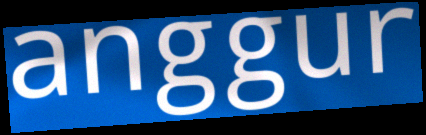
anggur